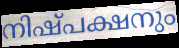
നിഷ്പക്ഷനും